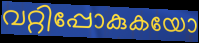
വറ്റിപ്പോകുകയോ